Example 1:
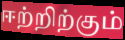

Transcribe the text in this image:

ஈற்றிற்கும்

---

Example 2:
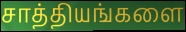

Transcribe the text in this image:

சாத்தியங்களை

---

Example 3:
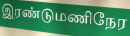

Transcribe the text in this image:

இரண்டுமணிநேர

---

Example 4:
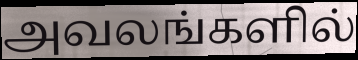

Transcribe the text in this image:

அவலங்களில்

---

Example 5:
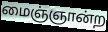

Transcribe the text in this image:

மைஞ்ஞான்ற